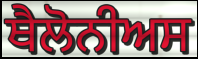
ਥੈਲੋਨੀਅਸ